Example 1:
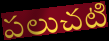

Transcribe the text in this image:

పలుచటి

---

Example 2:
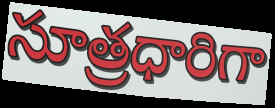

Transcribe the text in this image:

సూత్రధారిగా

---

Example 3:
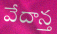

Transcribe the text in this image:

వేదాన్త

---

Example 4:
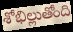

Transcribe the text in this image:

శోభిల్లుతోంది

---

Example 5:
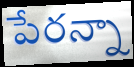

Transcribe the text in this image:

పేరన్నా